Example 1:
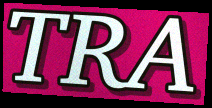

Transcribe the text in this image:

TRA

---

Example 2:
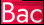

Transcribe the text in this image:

Bac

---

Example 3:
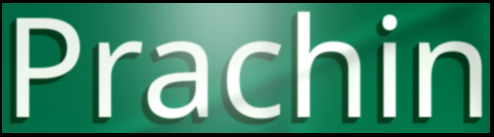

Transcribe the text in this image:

Prachin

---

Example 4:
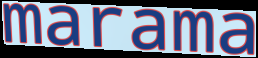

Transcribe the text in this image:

marama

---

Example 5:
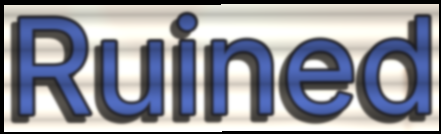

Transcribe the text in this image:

Ruined